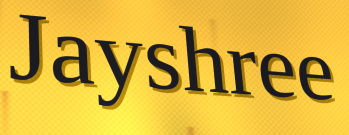
Jayshree